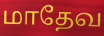
மாதேவ